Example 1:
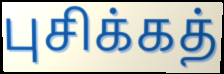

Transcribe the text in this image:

புசிக்கத்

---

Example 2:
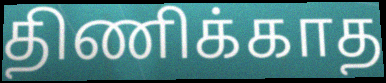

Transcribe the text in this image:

திணிக்காத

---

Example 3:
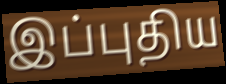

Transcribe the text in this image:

இப்புதிய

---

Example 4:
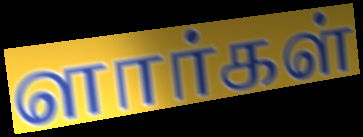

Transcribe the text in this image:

ளார்கள்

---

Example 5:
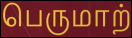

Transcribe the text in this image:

பெருமாற்